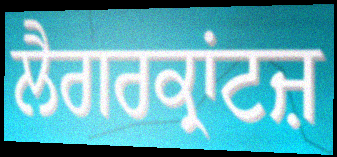
ਲੈਗਰਕ੍ਰਾਂਟਜ਼